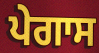
ਪੇਗਾਸ